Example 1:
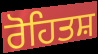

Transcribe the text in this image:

ਰੋਹਿਤਸ਼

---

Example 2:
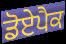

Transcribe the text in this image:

ਡੋਏਪੈਕ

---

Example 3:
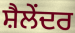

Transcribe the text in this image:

ਸ਼ੈਲੇਂਦਰ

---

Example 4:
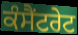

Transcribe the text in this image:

ਕੰਸੈਂਟਰੇਟ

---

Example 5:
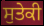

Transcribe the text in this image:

ਸੁਤੇਕੀ